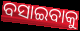
ବସାଇବାକୁ